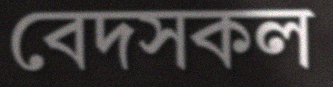
বেদসকল